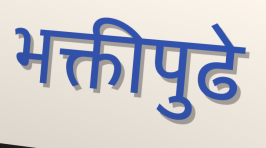
भक्तीपुढे